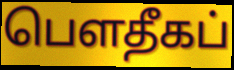
பௌதீகப்